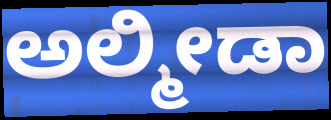
ಅಲ್ಮೀಡಾ